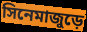
সিনেমাজুড়ে